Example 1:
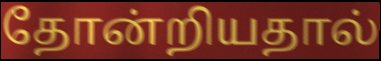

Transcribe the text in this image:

தோன்றியதால்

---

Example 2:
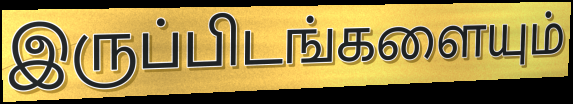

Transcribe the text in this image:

இருப்பிடங்களையும்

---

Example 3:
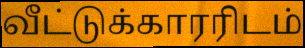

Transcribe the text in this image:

வீட்டுக்காரரிடம்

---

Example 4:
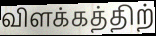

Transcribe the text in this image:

விளக்கத்திற்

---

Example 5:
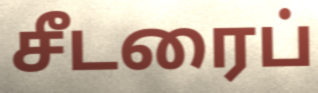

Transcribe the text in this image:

சீடரைப்